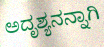
ಅದೃಶ್ಯನನ್ನಾಗಿ